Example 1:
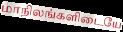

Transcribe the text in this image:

மாநிலங்களிடையே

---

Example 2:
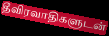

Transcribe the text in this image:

தீவிரவாதிகளுடன்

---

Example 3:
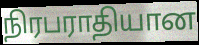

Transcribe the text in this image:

நிரபராதியான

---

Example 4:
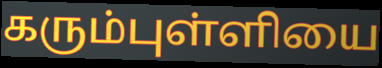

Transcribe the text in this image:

கரும்புள்ளியை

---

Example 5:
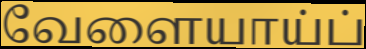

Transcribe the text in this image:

வேளையாய்ப்